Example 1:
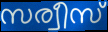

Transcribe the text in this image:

സര്വീസ്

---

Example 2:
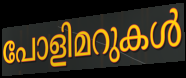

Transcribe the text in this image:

പോളിമറുകൾ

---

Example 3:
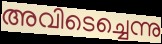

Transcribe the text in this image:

അവിടെച്ചെന്നു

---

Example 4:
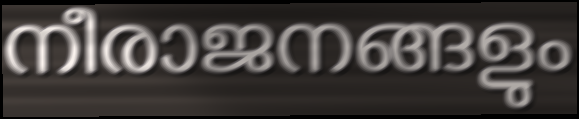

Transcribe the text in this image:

നീരാജനങ്ങളും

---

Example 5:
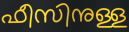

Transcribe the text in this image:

ഫീസിനുള്ള